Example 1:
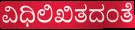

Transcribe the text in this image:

ವಿಧಿಲಿಖಿತದಂತೆ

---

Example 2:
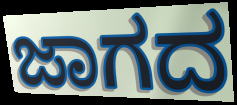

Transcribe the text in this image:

ಜಾಗದ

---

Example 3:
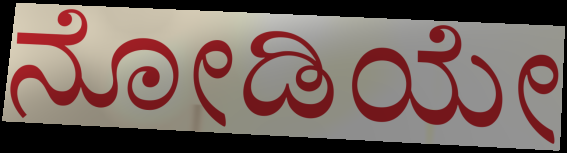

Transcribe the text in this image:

ನೋಡಿಯೇ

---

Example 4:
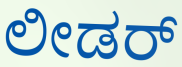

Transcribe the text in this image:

ಲೀಡರ್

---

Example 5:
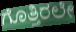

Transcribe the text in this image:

ಗೊತ್ತಿರಲೇ